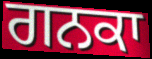
ਗਨਕਾ